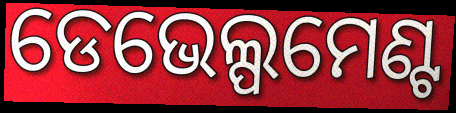
ଡେଭେଲ୍ପମେଣ୍ଟ